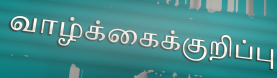
வாழ்க்கைக்குறிப்பு